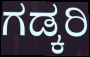
ಗಡ್ಕರಿ